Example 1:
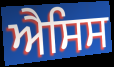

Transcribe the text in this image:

ਐਸਿਸ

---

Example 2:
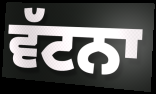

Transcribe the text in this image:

ਵੱਟਨਾ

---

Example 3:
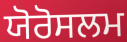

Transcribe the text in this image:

ਯੋਰੋਸਲਮ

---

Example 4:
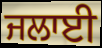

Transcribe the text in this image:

ਜਲਾਈ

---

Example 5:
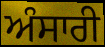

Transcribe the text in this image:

ਅੰਸਾਰੀ